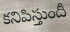
కనిపిస్తుందీ